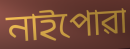
নাইপোৱা